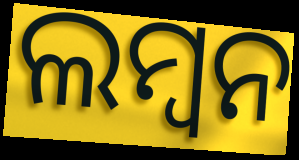
ଲମ୍ବନ